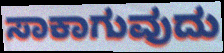
ಸಾಕಾಗುವುದು